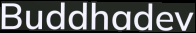
Buddhadev